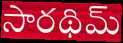
సారథిమ్